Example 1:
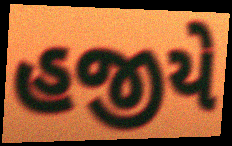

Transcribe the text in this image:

હજીયે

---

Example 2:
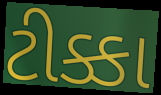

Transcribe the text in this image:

ટીક્કા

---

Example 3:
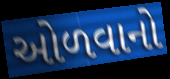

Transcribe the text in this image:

ઓળવાનો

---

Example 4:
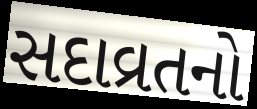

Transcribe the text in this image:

સદાવ્રતનો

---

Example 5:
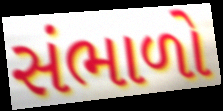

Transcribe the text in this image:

સંભાળો